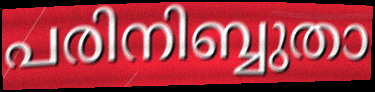
പരിനിബ്ബുതാ